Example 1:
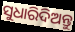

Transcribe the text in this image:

ସୁଧାରିଦିଅନ୍ତୁ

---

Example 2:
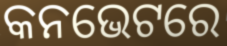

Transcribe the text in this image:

କନଭେଟରେ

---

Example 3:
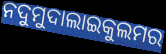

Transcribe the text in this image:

ନଦୁମୁଦାଲାଇକୁଲମର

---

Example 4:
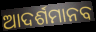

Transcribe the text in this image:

ଆଦର୍ଶମାନବ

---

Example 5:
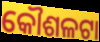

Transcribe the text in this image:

କୌଶଳଟା